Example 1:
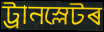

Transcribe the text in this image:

ট্ৰানস্লেটৰ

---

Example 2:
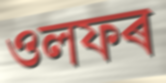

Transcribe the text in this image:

ওলফৰ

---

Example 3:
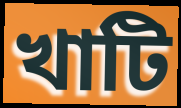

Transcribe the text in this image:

খাটি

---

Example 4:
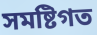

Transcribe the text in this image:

সমষ্টিগত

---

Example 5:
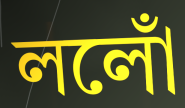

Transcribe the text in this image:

ললোঁ